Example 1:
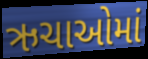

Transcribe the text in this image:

ઋચાઓમાં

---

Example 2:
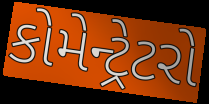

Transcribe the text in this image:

કોમેન્ટ્રેટરો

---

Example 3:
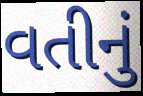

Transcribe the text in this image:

વતીનું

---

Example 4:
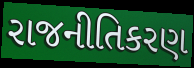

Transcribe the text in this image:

રાજનીતિકરણ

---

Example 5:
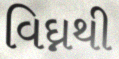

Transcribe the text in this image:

વિઘ્નથી